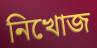
নিখোজ